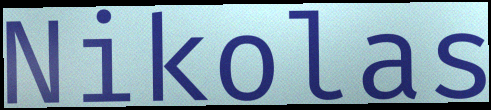
Nikolas